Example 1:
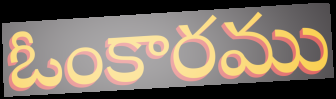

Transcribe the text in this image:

ఓంకారము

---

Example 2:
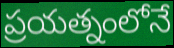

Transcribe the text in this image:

ప్రయత్నంలోనే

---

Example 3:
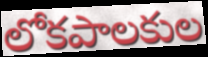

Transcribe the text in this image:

లోకపాలకుల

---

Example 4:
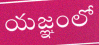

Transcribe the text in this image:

యజ్ఞంలో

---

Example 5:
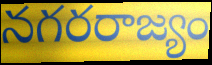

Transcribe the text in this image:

నగరరాజ్యం